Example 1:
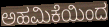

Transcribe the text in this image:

ಅಹಮಿಕೆಯಿಂದ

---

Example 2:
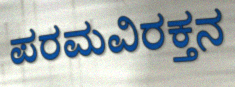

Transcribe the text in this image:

ಪರಮವಿರಕ್ತನ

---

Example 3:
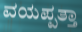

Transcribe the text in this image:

ವಯಪ್ಪತ್ತಾ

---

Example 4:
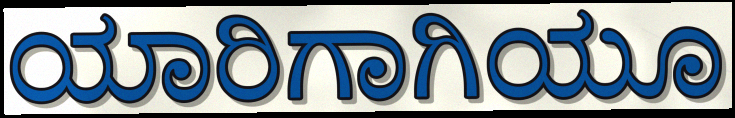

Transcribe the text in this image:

ಯಾರಿಗಾಗಿಯೂ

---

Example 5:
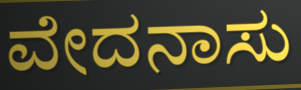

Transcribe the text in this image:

ವೇದನಾಸು